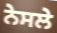
ਨੇਸਲੇ